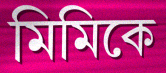
মিমিকে